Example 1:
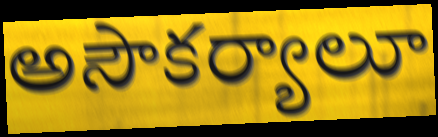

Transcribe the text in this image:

అసౌకర్యాలూ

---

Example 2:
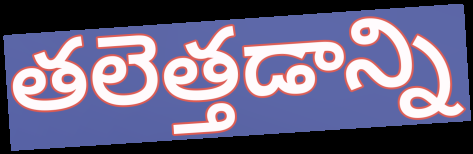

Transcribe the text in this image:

తలెత్తడాన్ని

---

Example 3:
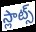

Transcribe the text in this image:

స్లాట్స్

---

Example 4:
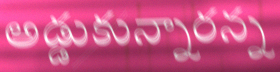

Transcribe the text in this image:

అడ్డుకున్నారన్న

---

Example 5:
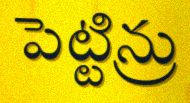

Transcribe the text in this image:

పెట్టిన్రు